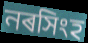
নৰসিংহ